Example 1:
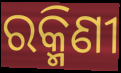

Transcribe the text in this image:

ରକ୍ମିଣୀ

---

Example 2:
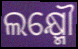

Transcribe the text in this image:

ଲକ୍ଷ୍ମୌ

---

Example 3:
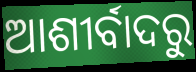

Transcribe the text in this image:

ଆଶୀର୍ବାଦରୁ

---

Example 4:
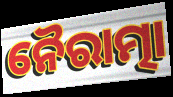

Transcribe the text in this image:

ନୈରାତ୍ମା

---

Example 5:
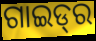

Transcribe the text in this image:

ଗାଇଡ୍‌ର